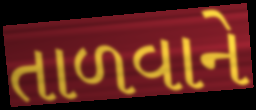
તાળવાને